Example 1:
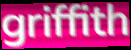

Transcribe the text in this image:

griffith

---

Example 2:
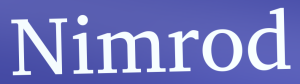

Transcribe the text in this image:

Nimrod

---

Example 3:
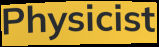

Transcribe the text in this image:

Physicist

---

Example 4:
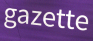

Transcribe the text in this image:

gazette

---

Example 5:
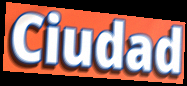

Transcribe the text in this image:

Ciudad